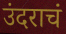
उंदराचं